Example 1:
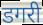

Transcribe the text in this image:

डगरी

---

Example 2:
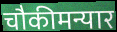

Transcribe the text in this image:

चौकीमन्यार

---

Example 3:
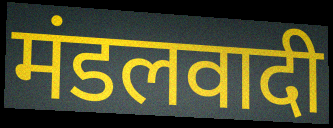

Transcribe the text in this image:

मंडलवादी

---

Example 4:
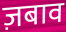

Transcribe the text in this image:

ज़बाव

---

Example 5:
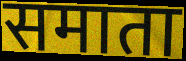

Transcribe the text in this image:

समाता